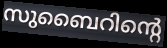
സുബൈറിന്റെ